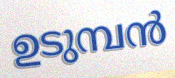
ഉടുമ്പൻ